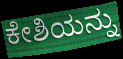
ಕೇಶಿಯನ್ನು